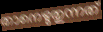
താനെഴുതുന്നത്